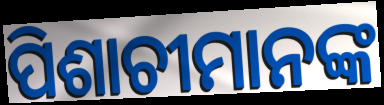
ପିଶାଚୀମାନଙ୍କ